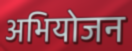
अभियोजन